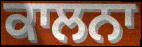
ਕਾਲਨਾ